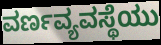
ವರ್ಣವ್ಯವಸ್ಥೆಯು